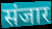
संजार